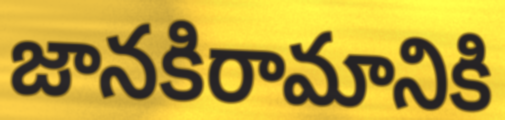
జానకిరామానికి